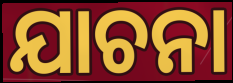
ଯାଚନା